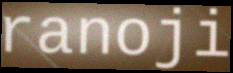
ranoji